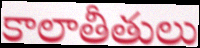
కాలాతీతులు